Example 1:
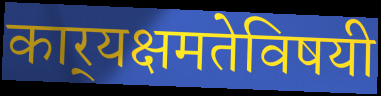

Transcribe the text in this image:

कार्यक्षमतेविषयी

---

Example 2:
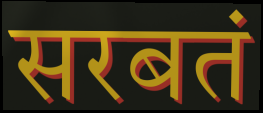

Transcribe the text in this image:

सरबतं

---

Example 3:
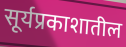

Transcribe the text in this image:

सूर्यप्रकाशातील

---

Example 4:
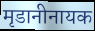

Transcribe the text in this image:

मृडानीनायक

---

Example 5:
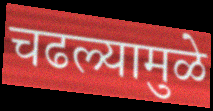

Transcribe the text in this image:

चढल्यामुळे